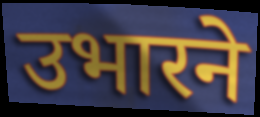
उभारने